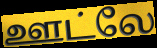
ஊட்லே